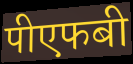
पीएफबी